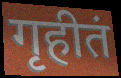
गृहीतं